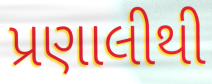
પ્રણાલીથી